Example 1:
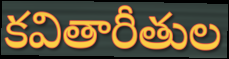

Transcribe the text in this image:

కవితారీతుల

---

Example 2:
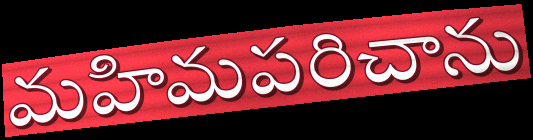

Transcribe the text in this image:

మహిమపరిచాను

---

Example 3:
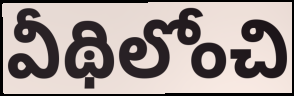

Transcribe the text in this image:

వీథిలోంచి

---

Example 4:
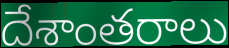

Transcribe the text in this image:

దేశాంతరాలు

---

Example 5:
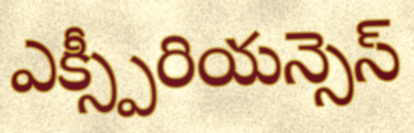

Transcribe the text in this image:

ఎక్స్పీరియన్సెస్